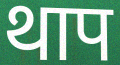
थाप